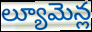
ల్యూమెన్ల